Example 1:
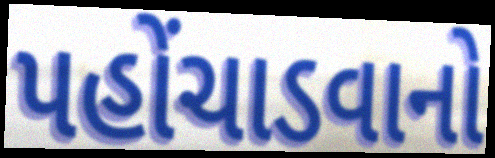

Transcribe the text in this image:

પહોંચાડવાનો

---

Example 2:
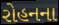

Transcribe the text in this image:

રોહનના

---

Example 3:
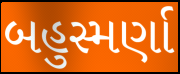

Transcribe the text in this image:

બહુસ્મર્ણા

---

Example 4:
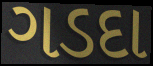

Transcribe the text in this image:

ગડદા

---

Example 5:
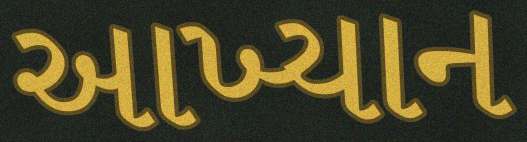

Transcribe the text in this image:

આખ્યાન